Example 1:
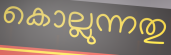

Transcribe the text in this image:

കൊല്ലുന്നതു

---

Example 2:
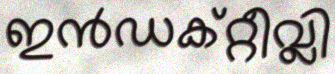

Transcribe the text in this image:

ഇൻഡക്റ്റീവ്ലി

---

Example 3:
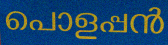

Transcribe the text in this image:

പൊളപ്പൻ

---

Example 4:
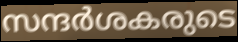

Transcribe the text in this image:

സന്ദർശകരുടെ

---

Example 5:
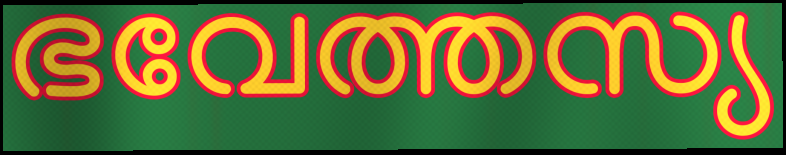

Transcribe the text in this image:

ഭവേത്തസ്യ